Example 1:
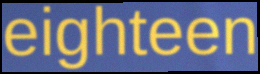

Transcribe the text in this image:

eighteen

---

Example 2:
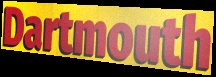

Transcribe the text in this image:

Dartmouth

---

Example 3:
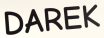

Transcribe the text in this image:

DAREK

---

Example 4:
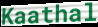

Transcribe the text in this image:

Kaathal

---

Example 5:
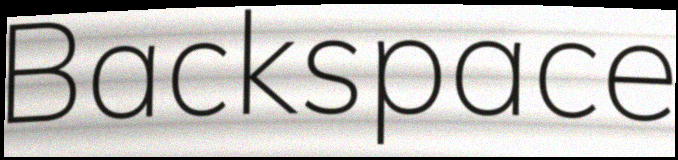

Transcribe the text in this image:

Backspace